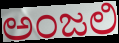
ಅಂಜಲಿ